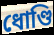
ধোণ্ডি